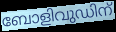
ബോളിവുഡിന്